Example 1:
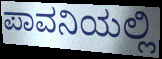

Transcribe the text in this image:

ಪಾವನಿಯಲ್ಲಿ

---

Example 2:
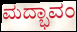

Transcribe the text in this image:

ಮದ್ಭಾವಂ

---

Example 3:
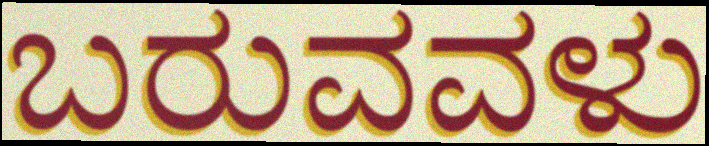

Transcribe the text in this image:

ಬರುವವಳು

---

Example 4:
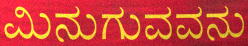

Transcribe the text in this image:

ಮಿನುಗುವವನು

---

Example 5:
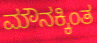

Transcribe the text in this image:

ಮೌನಕ್ಕಿಂತ